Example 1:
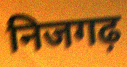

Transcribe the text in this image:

निजगढ़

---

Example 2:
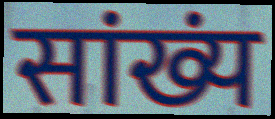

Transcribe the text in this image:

सांख्यं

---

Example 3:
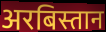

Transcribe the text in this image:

अरबिस्तान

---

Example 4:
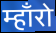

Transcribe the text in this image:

म्हाँरो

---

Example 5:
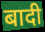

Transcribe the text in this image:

बादी